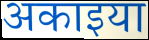
अकाइया